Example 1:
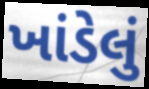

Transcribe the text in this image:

ખાંડેલું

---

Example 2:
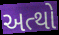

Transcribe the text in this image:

અત્થો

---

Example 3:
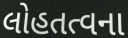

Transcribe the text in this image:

લોહતત્વના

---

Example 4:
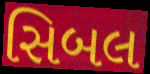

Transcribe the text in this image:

સિબલ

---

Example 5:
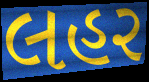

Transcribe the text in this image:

લહર